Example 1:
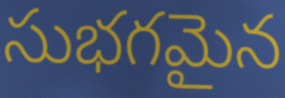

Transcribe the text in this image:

సుభగమైన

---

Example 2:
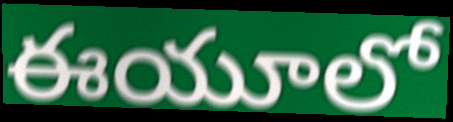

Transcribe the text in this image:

ఈయూలో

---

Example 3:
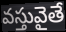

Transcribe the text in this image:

వస్తువైతే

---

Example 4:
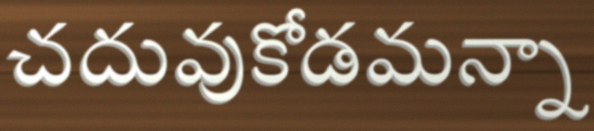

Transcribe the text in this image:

చదువుకోడమన్నా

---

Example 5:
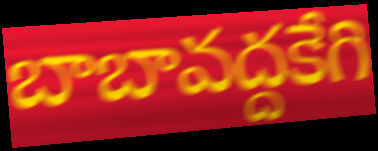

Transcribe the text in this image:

బాబావద్దకేగి